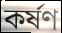
কর্ষণ